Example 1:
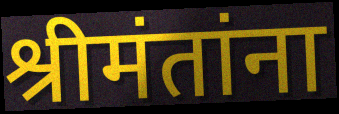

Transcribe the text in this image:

श्रीमंतांना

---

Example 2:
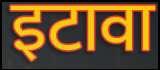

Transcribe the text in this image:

इटावा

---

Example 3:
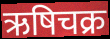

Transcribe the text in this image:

ऋषिचक्र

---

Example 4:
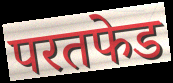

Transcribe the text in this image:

परतफेड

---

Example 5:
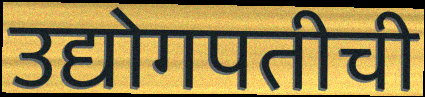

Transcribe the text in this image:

उद्योगपतीची